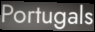
Portugals